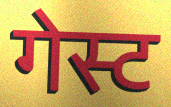
गेस्ट